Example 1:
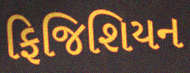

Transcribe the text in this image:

ફિજિશિયન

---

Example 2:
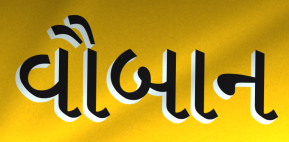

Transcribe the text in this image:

વૌબાન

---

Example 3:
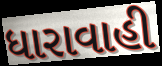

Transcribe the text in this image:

ધારાવાહી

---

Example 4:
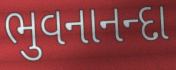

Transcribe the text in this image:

ભુવનાનન્દા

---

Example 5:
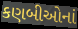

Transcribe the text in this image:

કણબીઓનાં